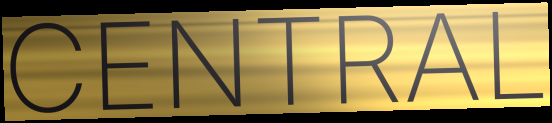
CENTRAL